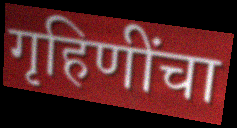
गृहिणींचा